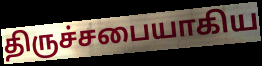
திருச்சபையாகிய